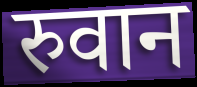
रुवान